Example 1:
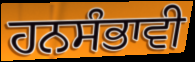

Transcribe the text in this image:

ਹਨਸੰਭਾਵੀ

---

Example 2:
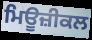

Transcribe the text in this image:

ਮਿਊਜ਼ੀਕਲ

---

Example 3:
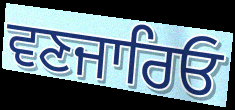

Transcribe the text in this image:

ਵਣਜਾਰਿਓ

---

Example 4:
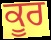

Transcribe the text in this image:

ਕੂਰ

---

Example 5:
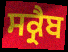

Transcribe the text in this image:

ਸਕ੍ਰੈਬ